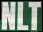
NLT